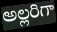
అల్లరిగా